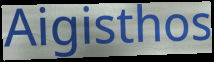
Aigisthos